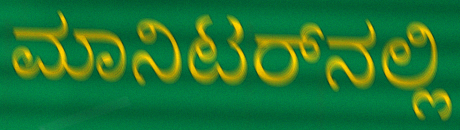
ಮಾನಿಟರ್‌ನಲ್ಲಿ